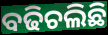
ବଢିଚଲିଛି